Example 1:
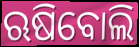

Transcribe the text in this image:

ଋଷିବୋଲି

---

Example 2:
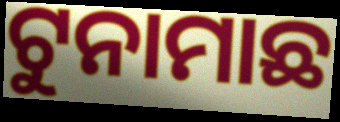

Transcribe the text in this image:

ଟୁନାମାଛ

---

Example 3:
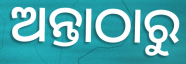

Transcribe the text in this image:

ଅନ୍ତାଠାରୁ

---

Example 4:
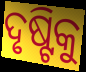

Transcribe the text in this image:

ଦୃଷ୍ଟିକୁ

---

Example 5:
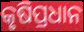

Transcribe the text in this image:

କୃଷିପ୍ରଧାନ